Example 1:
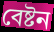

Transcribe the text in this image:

বেষ্টন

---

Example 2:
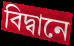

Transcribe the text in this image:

বিদ্বানে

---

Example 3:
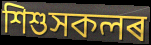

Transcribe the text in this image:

শিশুসকলৰ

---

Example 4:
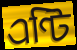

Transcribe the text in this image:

এণ্টি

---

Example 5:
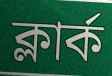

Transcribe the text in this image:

ক্লাৰ্ক